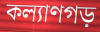
কল্যাণগড়